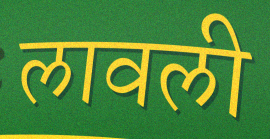
लावली